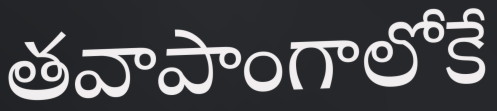
తవాపాంగాలోకే